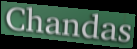
Chandas